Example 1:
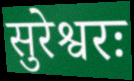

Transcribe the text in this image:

सुरेश्वरः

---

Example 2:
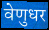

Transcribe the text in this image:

वेणुधर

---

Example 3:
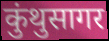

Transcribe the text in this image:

कुंथुसागर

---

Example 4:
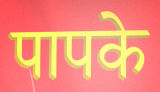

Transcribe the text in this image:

पापके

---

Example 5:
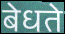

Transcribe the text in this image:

बेधते